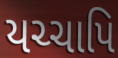
યચ્ચાપિ